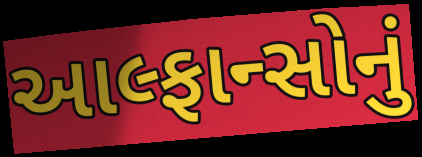
આલ્ફાન્સોનું